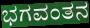
ಭಗವಂತನ